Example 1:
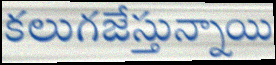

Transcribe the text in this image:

కలుగజేస్తున్నాయి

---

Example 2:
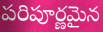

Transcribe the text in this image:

పరిపూర్ణమైన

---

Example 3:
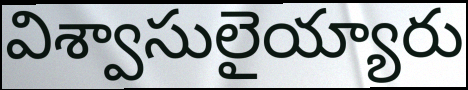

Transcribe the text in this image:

విశ్వాసులైయ్యారు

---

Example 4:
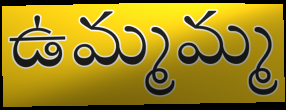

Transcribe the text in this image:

ఉమ్మమ్మ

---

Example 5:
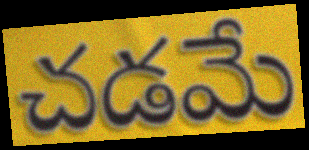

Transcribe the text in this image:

చడమే